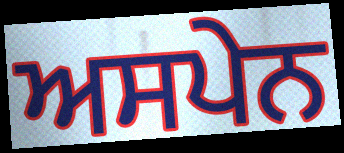
ਅਸਪੇਨ